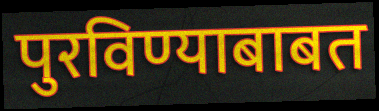
पुरविण्याबाबत